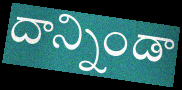
దాన్నిండా